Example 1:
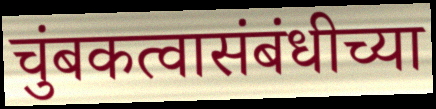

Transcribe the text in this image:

चुंबकत्वासंबंधीच्या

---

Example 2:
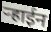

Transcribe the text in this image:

ऱ्हाईन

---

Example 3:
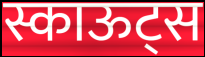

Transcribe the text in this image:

स्काऊट्स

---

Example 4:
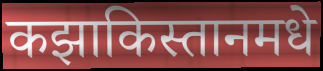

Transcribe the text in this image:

कझाकिस्तानमधे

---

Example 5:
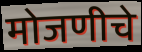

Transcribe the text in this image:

मोजणीचे